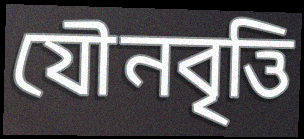
যৌনবৃত্তি